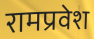
रामप्रवेश